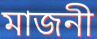
মাজনী